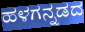
ಹಳಗನ್ನಡದ